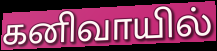
கனிவாயில்